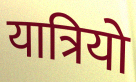
यात्रियो